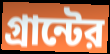
গ্রান্টের